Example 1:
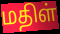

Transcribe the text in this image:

மதிள்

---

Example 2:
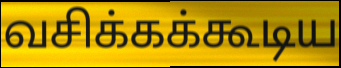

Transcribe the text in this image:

வசிக்கக்கூடிய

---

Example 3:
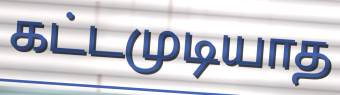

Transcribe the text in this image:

கட்டமுடியாத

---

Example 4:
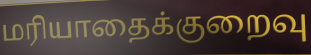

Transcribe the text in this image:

மரியாதைக்குறைவு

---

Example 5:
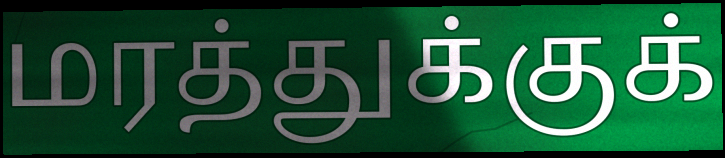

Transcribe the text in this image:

மரத்துக்குக்